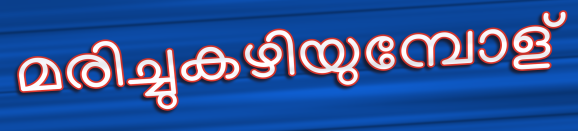
മരിച്ചുകഴിയുമ്പോള്